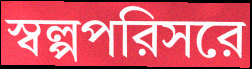
স্বল্পপরিসরে